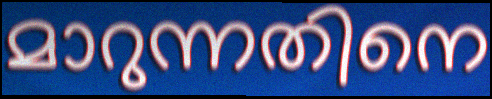
മാറുന്നതിനെ